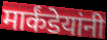
मार्कंडेयांनी